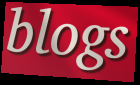
blogs